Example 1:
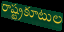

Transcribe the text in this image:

రాష్ట్రకూటుల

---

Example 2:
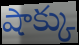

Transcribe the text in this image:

షాక్కు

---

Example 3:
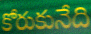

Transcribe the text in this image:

కోరుకునేది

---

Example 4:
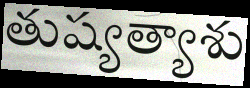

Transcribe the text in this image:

తుష్యత్యాశు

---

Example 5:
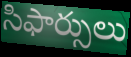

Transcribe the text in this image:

సిఫార్సులు